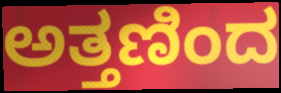
ಅತ್ತಣಿಂದ